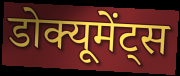
डोक्यूमेंट्स